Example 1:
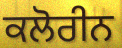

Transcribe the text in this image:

ਕਲੋਰੀਨ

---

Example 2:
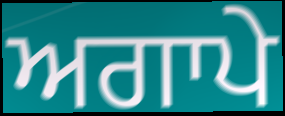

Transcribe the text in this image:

ਅਗਾਪੇ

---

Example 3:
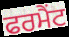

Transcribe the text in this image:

ਫਰਮੈਂਟ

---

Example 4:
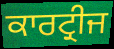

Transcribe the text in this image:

ਕਾਰਟ੍ਰੀਜ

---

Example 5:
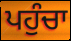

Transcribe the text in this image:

ਪਹੁੰਚਾ